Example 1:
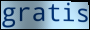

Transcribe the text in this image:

gratis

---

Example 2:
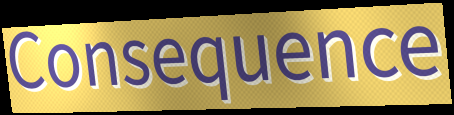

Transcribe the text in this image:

Consequence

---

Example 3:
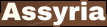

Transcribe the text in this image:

Assyria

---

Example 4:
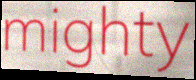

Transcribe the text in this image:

mighty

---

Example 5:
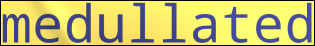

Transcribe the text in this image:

medullated